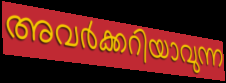
അവർക്കറിയാവുന്ന